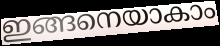
ഇങ്ങനെയാകാം